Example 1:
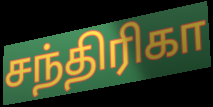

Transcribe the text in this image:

சந்திரிகா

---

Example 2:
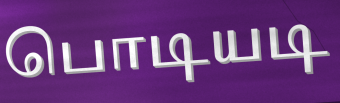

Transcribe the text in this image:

பொடியடி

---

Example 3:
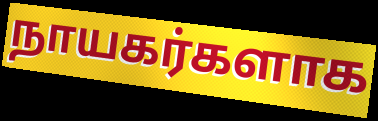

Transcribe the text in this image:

நாயகர்களாக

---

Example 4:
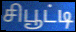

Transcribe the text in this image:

சிபூட்டி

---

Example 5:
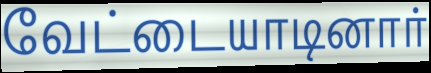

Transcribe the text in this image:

வேட்டையாடினார்